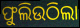
ଫୁଲିଉଠିଲା